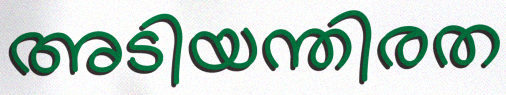
അടിയന്തിരത